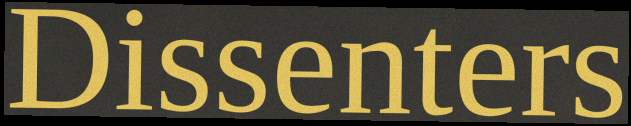
Dissenters